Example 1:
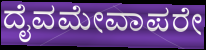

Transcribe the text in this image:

ದೈವಮೇವಾಪರೇ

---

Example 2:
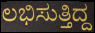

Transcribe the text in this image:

ಲಭಿಸುತ್ತಿದ್ದ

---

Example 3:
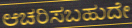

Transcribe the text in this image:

ಆಚರಿಸಬಹುದೇ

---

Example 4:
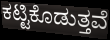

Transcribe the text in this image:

ಕಟ್ಟಿಕೊಡುತ್ತವೆ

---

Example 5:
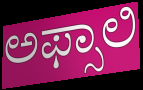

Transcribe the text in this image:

ಅಫ್ಸಾಲಿ